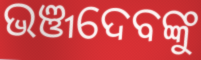
ଭଞ୍ଜଦେବଙ୍କୁ